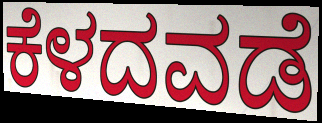
ಕೆಳದವಡೆ